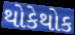
થોકેથોક